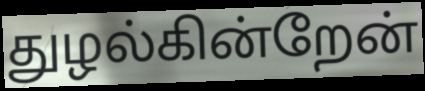
துழல்கின்றேன்